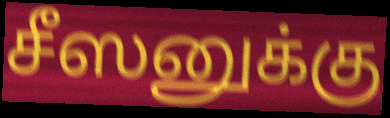
சீஸனுக்கு